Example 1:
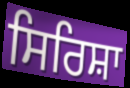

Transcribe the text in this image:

ਸਿਰਿਸ਼ਾ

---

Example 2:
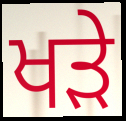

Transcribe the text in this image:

ਖਡ਼ੇ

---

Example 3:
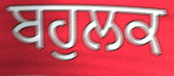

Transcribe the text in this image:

ਬਹੁਲਕ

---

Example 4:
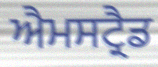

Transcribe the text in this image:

ਐਮਸਟ੍ਰੈਡ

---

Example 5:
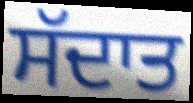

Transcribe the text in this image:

ਸੱਦਾਤ